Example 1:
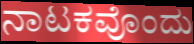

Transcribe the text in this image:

ನಾಟಕವೊಂದು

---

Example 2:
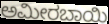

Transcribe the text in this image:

ಅಮೀರಬಾಯಿ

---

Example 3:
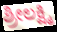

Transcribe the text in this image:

ಶ್ರೀಲಕ್ಷ್ಮಿ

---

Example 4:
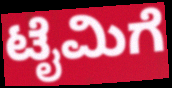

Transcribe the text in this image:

ಟೈಮಿಗೆ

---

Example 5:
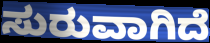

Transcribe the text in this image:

ಸುರುವಾಗಿದೆ